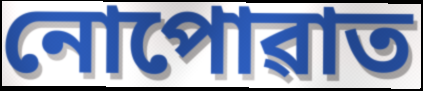
নোপোৱাত